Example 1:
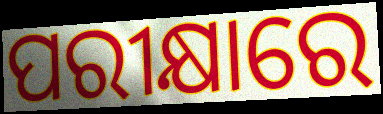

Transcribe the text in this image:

ପରୀକ୍ଷାରେ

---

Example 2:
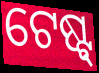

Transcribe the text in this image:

ଟେଷ୍ଟ୍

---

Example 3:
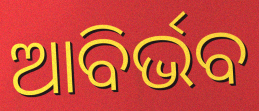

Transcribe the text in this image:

ଆବିର୍ଭବ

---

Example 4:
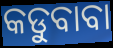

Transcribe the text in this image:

କଡୁବାବା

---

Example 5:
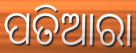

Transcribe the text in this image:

ପତିଆରା